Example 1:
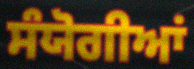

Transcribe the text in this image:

ਸੰਯੋਗੀਆਂ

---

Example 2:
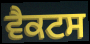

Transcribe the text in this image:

ਵੈਕਟਸ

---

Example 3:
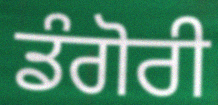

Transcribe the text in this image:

ਡੰਗੋਰੀ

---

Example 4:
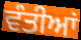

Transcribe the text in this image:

ਵੰਤੀਆਂ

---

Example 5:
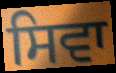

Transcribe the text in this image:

ਸਿਵਾ